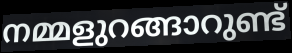
നമ്മളുറങ്ങാറുണ്ട്